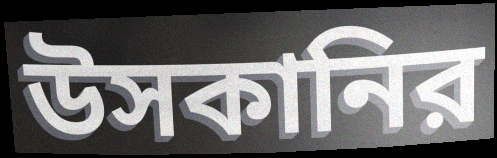
উসকানির